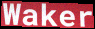
Waker